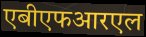
एबीएफआरएल